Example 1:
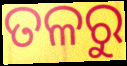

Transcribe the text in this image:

ତଳରୁ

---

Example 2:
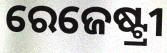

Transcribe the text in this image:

ରେଜେଷ୍ଟ୍ରୀ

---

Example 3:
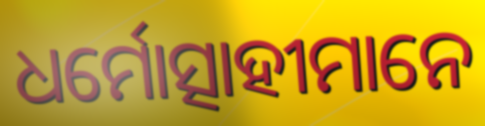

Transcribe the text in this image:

ଧର୍ମୋତ୍ସାହୀମାନେ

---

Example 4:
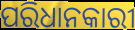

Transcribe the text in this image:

ପରିଧାନକାରୀ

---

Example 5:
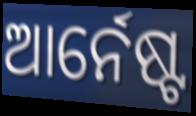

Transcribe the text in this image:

ଆର୍ନେଷ୍ଟ